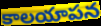
కాలయాపన